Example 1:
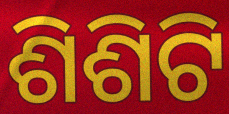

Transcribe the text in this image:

ଶିଶିଟି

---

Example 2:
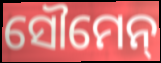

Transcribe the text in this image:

ସୌମେନ୍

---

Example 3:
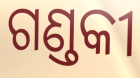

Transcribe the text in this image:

ଗଣ୍ଡକୀ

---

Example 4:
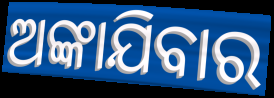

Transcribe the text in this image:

ଅଙ୍କାଯିବାର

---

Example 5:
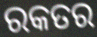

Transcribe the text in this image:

ରକତର